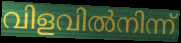
വിളവിൽനിന്ന്